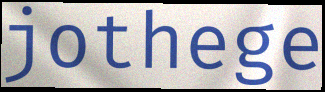
jothege